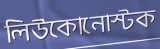
লিউকোনোস্টক